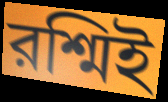
রশ্মিই